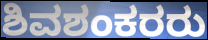
ಶಿವಶಂಕರರು